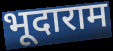
भूदाराम